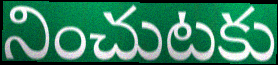
నించుటకు